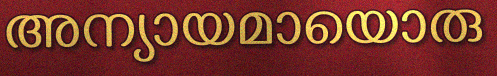
അന്യായമായൊരു